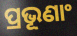
ପ୍ରଭୂଣାଂ